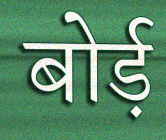
बोर्ड़